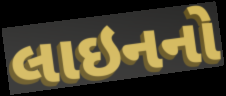
લાઇનનો